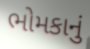
ભોમકાનું